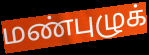
மண்புழுக்